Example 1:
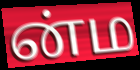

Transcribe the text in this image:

ன்ம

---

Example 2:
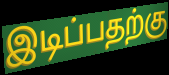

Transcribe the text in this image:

இடிப்பதற்கு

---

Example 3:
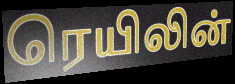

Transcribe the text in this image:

ரெயிலின்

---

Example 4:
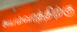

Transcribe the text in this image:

சுயம்வரத்திற்கு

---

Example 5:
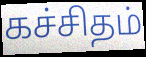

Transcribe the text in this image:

கச்சிதம்